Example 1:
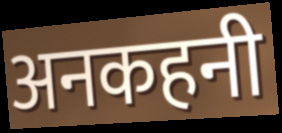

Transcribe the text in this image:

अनकहनी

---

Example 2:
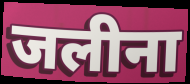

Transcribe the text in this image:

जलीना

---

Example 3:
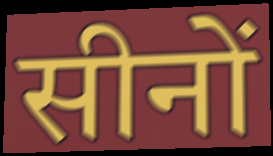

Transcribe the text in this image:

सीनों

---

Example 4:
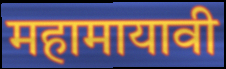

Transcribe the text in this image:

महामायावी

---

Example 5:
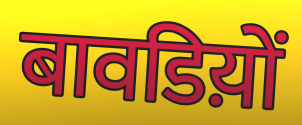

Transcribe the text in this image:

बावडिय़ों